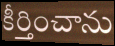
కీర్తించాను